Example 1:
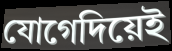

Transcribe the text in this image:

যোগেদিয়েই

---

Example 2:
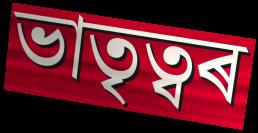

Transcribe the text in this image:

ভাতৃত্বৰ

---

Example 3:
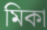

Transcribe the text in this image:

মিকা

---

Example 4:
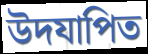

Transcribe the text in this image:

উদযাপিত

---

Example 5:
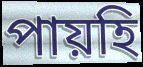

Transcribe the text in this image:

পায়হি